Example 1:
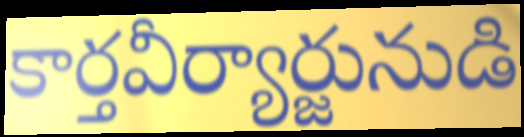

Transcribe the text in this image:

కార్తవీర్యార్జునుడి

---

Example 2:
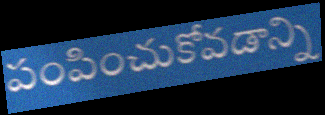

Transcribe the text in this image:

పంపించుకోవడాన్ని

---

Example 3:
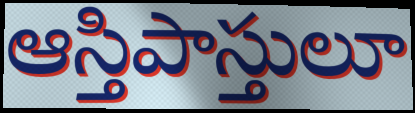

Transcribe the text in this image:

ఆస్తిపాస్తులూ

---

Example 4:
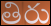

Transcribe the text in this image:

తిరు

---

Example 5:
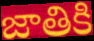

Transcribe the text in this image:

జాతికి